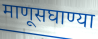
माणूसघाण्या